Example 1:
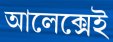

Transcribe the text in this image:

আলেক্সেই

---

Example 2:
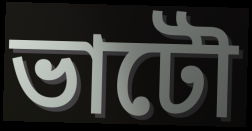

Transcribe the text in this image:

ভাটৌ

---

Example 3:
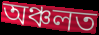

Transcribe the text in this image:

অঞ্চলত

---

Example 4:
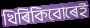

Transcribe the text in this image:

খিৰিকিবোৰেই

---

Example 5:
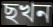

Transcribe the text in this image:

ছখন